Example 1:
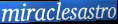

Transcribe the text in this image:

miraclesastro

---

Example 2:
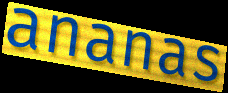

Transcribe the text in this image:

ananas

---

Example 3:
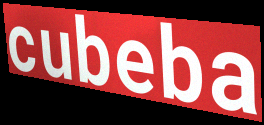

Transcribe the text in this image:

cubeba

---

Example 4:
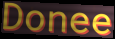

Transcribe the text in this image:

Donee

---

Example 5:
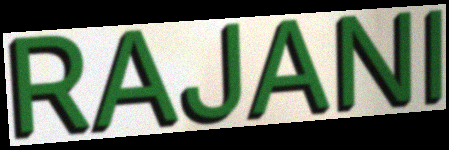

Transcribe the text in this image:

RAJANI